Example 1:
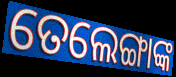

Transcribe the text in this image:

ତେଲେଙ୍ଗାଙ୍କ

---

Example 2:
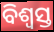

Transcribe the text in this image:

ବିଶ୍ଵସ୍ତ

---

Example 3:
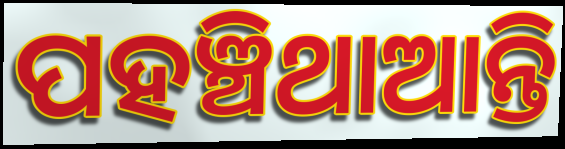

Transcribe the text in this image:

ପହଞ୍ଚିଥାଆନ୍ତି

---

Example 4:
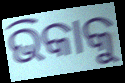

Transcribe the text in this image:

ଭିକାକୁ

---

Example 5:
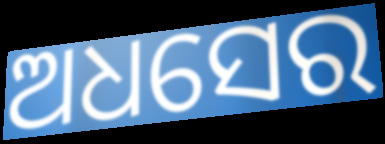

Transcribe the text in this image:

ଅଧସେର